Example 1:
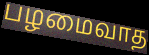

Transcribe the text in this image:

பழமைவாத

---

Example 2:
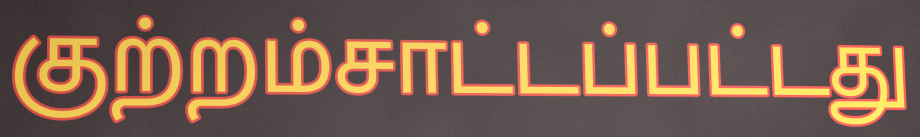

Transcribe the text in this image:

குற்றம்சாட்டப்பட்டது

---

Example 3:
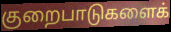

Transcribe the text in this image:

குறைபாடுகளைக்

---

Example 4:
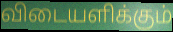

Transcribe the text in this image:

விடையளிக்கும்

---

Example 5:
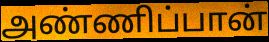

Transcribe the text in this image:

அண்ணிப்பான்